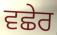
ਵਛੇਰ